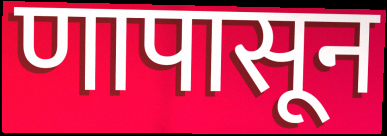
णापासून